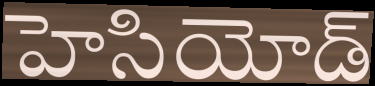
హెసియోడ్